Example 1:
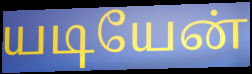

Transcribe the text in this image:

யடியேன்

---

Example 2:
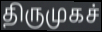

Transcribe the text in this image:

திருமுகச்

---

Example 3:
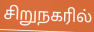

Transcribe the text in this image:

சிறுநகரில்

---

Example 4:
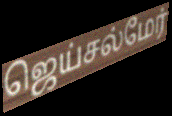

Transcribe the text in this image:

ஜெய்சல்மேர்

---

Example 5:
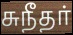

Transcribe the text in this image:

சுநீதர்